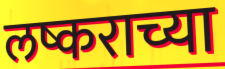
लष्कराच्या